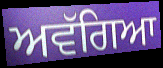
ਅਵੱਗਿਆ